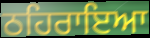
ਠਹਿਰਾਇਆ